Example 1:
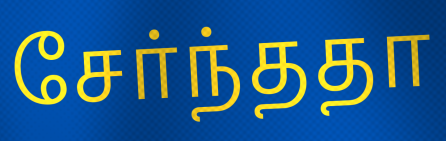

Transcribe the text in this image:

சேர்ந்ததா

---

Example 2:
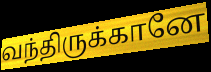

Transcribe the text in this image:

வந்திருக்கானே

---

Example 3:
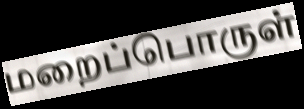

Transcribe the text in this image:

மறைப்பொருள்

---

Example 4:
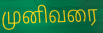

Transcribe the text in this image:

முனிவரை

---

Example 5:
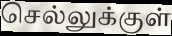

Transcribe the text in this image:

செல்லுக்குள்